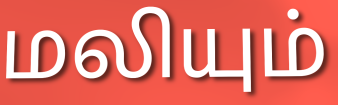
மலியும்